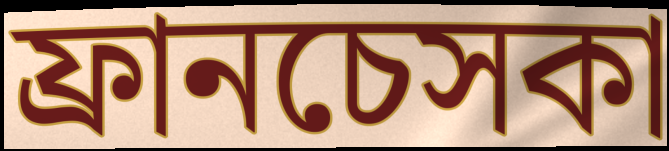
ফ্রানচেসকা